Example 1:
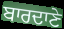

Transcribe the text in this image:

ਬਾਰਦਾਣੇ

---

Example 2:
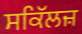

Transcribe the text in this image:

ਸਕਿੱਲਜ਼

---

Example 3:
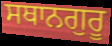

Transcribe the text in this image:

ਸਥਾਨਗੁਰੂ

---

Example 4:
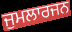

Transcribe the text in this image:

ਜੁਮਲਾਰਜਨ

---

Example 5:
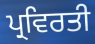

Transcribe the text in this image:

ਪ੍ਰਵਿਰਤੀ